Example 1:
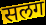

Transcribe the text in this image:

सलग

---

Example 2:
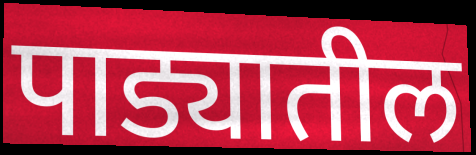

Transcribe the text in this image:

पाड्यातील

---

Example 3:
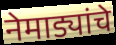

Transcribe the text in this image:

नेमाड्यांचे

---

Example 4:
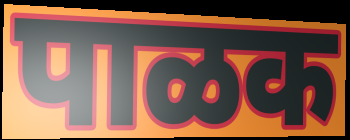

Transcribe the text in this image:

पाळक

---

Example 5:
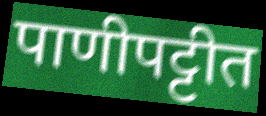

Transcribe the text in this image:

पाणीपट्टीत